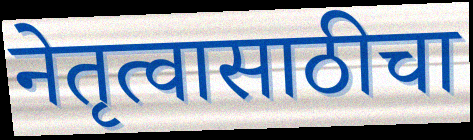
नेतृत्वासाठीचा